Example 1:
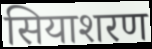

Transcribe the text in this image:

सियाशरण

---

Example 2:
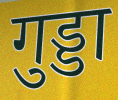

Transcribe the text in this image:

गुड्डा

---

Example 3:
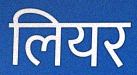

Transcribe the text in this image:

लियर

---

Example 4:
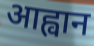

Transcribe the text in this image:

आह्वान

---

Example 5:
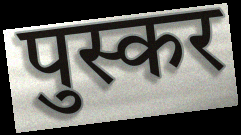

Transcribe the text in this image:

पुस्कर